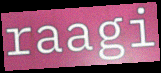
raagi